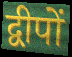
द्वीपों